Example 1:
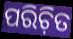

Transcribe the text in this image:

ପରିଚ଼ିତ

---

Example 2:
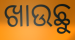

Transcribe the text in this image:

ଖାଉଛୁ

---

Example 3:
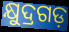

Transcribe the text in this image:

କ୍ଷୁଦ୍ରଗଡ଼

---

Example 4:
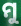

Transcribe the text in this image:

ମୁ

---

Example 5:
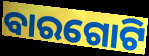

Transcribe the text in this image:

ବାରଗୋଟି